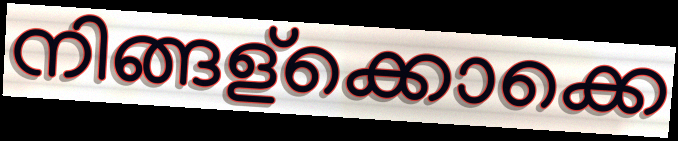
നിങ്ങള്ക്കൊക്കെ